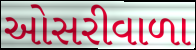
ઓસરીવાળા